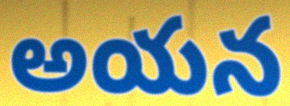
అయన